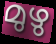
മുഴു